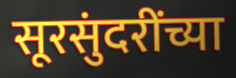
सूरसुंदरींच्या